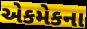
એકમેકના